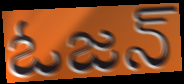
ఓజన్